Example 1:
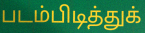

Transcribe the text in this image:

படம்பிடித்துக்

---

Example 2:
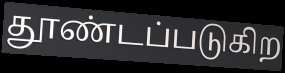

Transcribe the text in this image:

தூண்டப்படுகிற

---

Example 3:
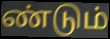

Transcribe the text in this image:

ண்டும்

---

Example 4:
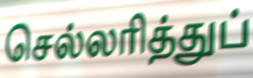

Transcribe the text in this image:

செல்லரித்துப்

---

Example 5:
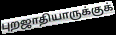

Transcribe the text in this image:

புறஜாதியாருக்குக்